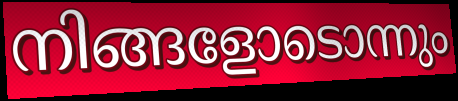
നിങ്ങളോടൊന്നും